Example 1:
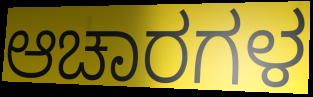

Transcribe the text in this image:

ಆಚಾರಗಳ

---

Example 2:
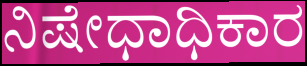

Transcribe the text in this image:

ನಿಷೇಧಾಧಿಕಾರ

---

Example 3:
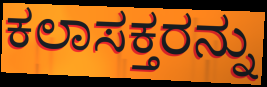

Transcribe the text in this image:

ಕಲಾಸಕ್ತರನ್ನು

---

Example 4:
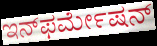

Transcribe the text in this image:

ಇನ್‌ಫರ್ಮೇಷನ್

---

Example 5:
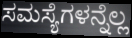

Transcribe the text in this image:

ಸಮಸ್ಯೆಗಳನ್ನೆಲ್ಲ